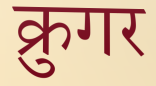
क्रुगर